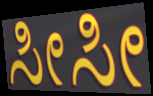
ಸೀಸೀ